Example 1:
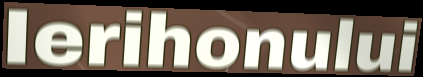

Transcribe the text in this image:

Ierihonului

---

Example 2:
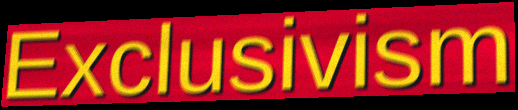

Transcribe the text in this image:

Exclusivism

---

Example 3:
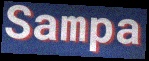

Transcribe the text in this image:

Sampa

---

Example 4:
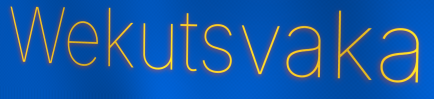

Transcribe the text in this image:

Wekutsvaka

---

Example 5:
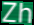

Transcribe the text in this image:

Zh